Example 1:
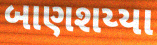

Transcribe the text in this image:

બાણશય્યા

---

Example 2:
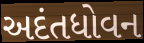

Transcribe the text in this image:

અદંતધોવન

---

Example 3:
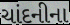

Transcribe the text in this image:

ચાંદનીના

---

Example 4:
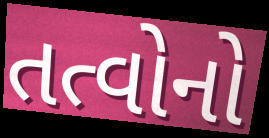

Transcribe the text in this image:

તત્વોનો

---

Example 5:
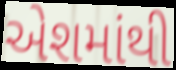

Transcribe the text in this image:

એશમાંથી